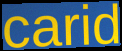
carid